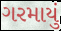
ગરમાયું